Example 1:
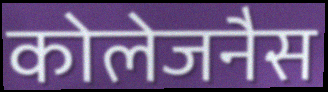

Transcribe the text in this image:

कोलेजनैस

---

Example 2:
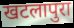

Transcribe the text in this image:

खटलापुरा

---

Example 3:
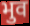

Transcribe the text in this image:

भुव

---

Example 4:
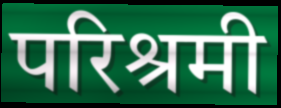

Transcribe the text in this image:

परिश्रमी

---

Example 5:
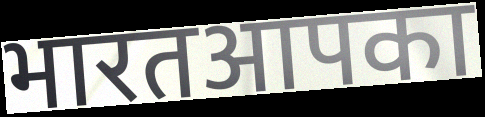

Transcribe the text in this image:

भारतआपका